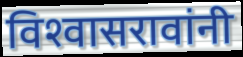
विश्वासरावांनी